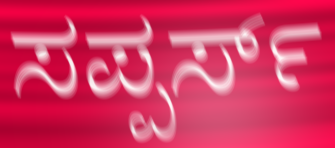
ಸಪ್ಪರ್ಸ್